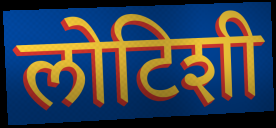
लोटिशी